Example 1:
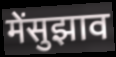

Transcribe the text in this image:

मेंसुझाव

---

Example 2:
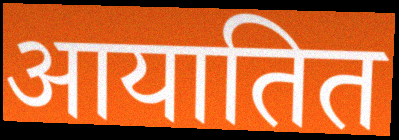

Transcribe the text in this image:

आयातित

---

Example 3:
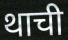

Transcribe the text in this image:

थाची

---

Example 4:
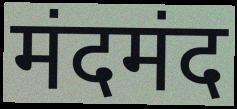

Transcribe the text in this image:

मंदमंद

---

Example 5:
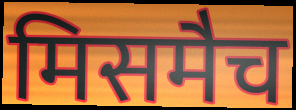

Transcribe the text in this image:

मिसमैच